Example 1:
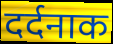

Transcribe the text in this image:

दर्दनाक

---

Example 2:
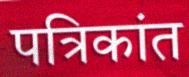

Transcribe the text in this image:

पत्रिकांत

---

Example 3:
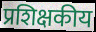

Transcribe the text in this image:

प्रशिक्षकीय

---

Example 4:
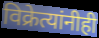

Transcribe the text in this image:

विक्रेत्यांनीही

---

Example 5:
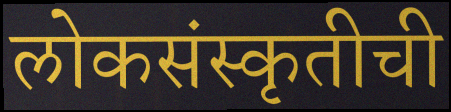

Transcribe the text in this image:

लोकसंस्कृतीची